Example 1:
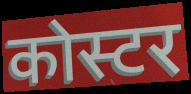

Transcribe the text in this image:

कोस्टर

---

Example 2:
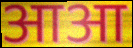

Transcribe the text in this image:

आआ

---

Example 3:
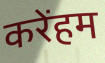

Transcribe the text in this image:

करेंहम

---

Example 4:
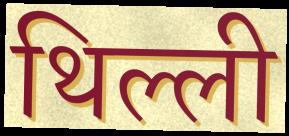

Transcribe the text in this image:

थिल्ली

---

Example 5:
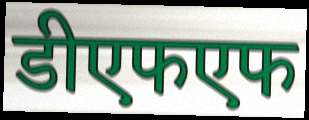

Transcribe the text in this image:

डीएफएफ